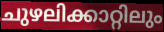
ചുഴലിക്കാറ്റിലും